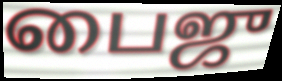
பைஜு